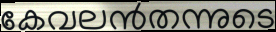
കേവലൻതന്നുടെ